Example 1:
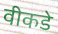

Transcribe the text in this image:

वीकडे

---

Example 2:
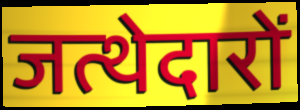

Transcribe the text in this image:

जत्थेदारों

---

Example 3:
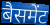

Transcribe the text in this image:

बैसमेंट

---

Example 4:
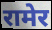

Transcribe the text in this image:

रामेर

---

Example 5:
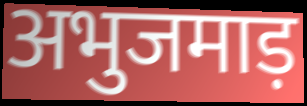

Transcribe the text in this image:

अभुजमाड़